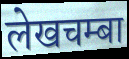
लेखचम्बा